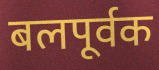
बलपूर्वक